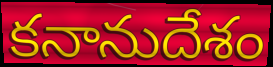
కనానుదేశం